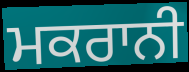
ਮਕਰਾਨੀ